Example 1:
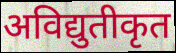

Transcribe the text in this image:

अविद्युतीकृत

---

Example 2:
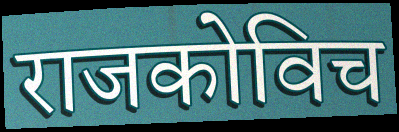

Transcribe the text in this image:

राजकोविच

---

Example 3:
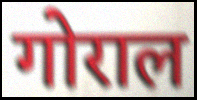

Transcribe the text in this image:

गोराल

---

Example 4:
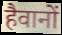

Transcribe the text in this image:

हैवानों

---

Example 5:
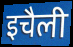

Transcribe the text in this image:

इचैली